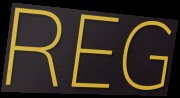
REG